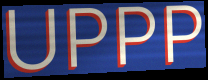
UPPP